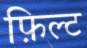
फ़िल्ट